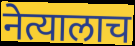
नेत्यालाच